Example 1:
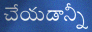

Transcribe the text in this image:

చేయడాన్నీ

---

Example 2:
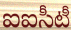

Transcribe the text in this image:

ఐఐసీటీ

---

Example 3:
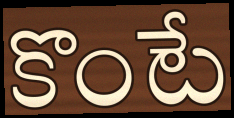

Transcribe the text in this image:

కొంటే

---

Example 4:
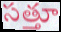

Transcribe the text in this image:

సత్తూ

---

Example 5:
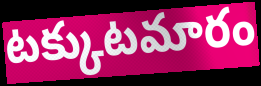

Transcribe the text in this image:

టక్కుటమారం